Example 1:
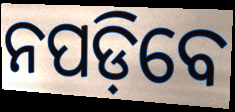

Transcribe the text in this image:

ନପଡ଼ିବେ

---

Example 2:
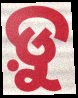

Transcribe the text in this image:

ଡ଼ୁ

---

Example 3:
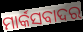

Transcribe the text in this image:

ମାର୍କସବାଦର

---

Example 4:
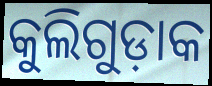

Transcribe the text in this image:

କୁଲିଗୁଡ଼ାକ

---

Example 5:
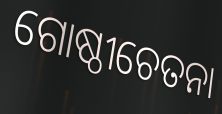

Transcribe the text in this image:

ଗୋଷ୍ଠୀଚେତନା